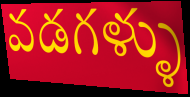
వడగళ్ళు